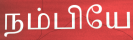
நம்பியே